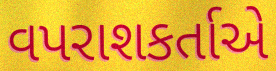
વપરાશકર્તાએ